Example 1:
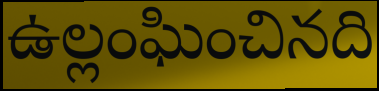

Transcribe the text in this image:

ఉల్లంఘించినది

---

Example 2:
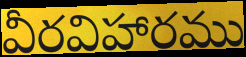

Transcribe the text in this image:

వీరవిహారము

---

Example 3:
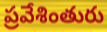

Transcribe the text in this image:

ప్రవేశింతురు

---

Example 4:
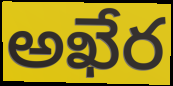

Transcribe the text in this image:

అఖేర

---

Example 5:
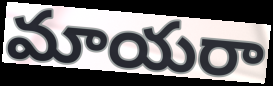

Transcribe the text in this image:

మాయరా